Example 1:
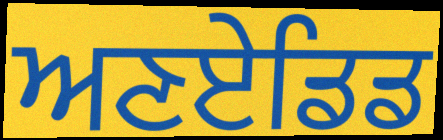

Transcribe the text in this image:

ਅਣਏਡਿਡ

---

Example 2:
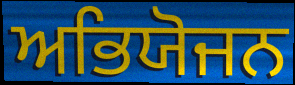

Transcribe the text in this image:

ਅਭਿਯੋਜਨ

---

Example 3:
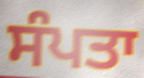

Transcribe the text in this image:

ਸੰਪਤਾ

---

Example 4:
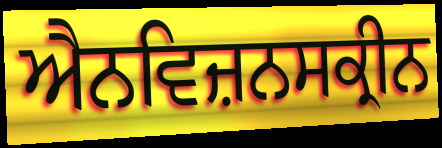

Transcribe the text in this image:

ਐਨਵਿਜ਼ਨਸਕ੍ਰੀਨ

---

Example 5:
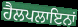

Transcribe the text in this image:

ਹੈਲਪਲਾਇਨਾਂ